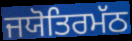
ਜਯੋਤਿਰਮੱਠ